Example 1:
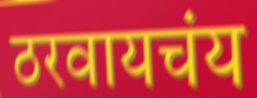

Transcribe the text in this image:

ठरवायचंय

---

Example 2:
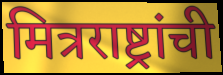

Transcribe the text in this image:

मित्रराष्ट्रांची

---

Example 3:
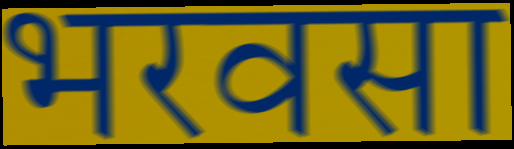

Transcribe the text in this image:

भरवसा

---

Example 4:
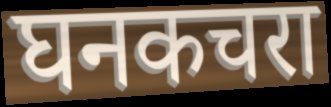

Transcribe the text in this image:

घनकचरा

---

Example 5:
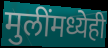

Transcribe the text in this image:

मुलींमध्येही